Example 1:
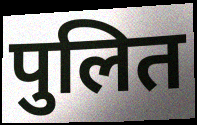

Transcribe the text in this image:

पुलित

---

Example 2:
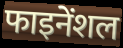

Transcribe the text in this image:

फाइनेंशल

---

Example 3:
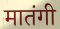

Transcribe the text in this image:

मातंगी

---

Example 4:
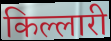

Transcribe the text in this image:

किल्लारी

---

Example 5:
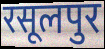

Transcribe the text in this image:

रसूलपुर